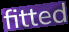
fitted